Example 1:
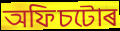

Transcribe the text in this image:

অফিচটোৰ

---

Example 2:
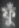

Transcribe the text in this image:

ফুঁ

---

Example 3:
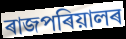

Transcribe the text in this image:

ৰাজপৰিয়ালৰ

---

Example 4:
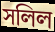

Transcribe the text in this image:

সলিল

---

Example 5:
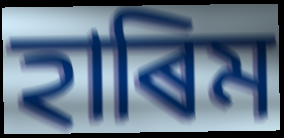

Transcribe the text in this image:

হাৰিম